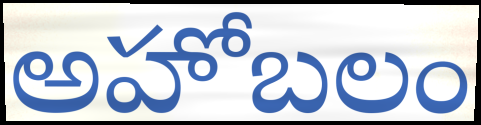
అహోబలం